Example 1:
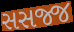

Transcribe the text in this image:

સસજ્જ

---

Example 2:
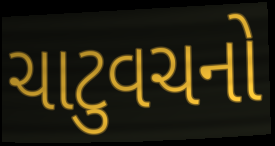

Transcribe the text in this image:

ચાટુવચનો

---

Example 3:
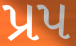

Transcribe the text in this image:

પ્રપ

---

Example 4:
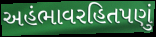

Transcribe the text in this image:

અહંભાવરહિતપણું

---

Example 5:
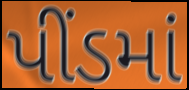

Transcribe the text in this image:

પીંડમાં